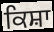
ਕਿਸ਼ਾ